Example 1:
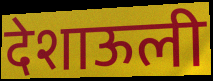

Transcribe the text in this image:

देशाऊली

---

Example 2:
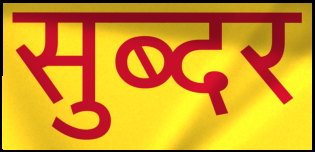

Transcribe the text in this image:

सुब्दर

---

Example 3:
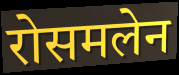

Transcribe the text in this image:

रोसमलेन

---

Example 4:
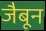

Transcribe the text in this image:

जैबून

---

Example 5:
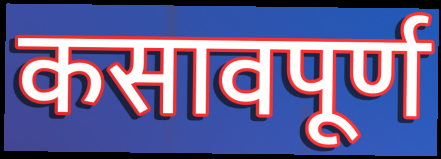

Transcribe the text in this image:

कसावपूर्ण